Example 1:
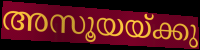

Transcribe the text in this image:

അസൂയയ്ക്കു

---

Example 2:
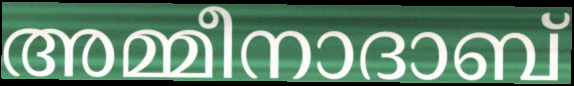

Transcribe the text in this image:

അമ്മീനാദാബ്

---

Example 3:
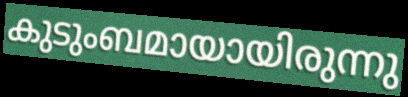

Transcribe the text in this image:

കുടുംബമായായിരുന്നു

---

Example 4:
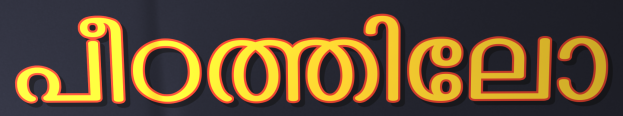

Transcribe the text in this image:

പീഠത്തിലോ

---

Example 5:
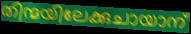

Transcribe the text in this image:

തിന്മയിലേക്കുചായാന്